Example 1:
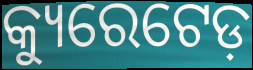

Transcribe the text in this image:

କ୍ୟୁରେଟେଡ଼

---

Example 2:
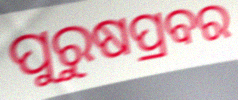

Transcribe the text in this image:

ପୁରୁଷପ୍ରବର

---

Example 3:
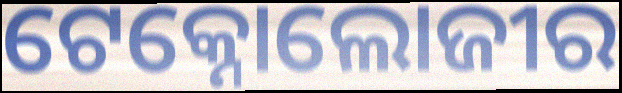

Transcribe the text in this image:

ଟେକ୍ନୋଲୋଜୀର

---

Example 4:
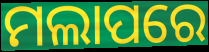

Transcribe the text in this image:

ମଲାପରେ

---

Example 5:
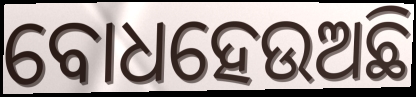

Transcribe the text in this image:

ବୋଧହେଉଅଛି